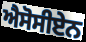
ਐਸੋਸੀਏਨ